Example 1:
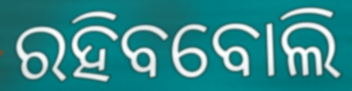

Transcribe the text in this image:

ରହିବବୋଲି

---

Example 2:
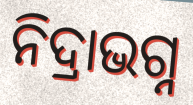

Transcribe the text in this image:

ନିଦ୍ରାଭଗ୍ନ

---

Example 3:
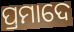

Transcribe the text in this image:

ପ୍ରମାଦେ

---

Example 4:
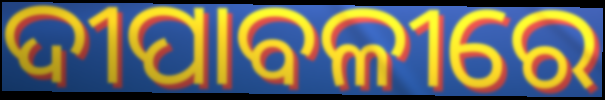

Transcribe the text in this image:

ଦୀପାବଳୀରେ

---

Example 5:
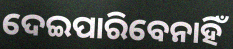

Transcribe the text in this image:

ଦେଇପାରିବେନାହିଁ